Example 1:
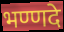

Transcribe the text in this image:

भण्णदे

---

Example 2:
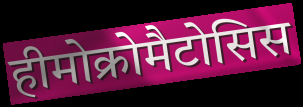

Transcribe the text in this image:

हीमोक्रोमैटोसिस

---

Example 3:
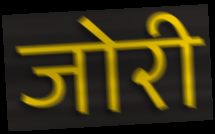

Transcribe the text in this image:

जोरी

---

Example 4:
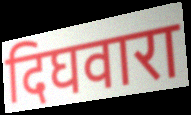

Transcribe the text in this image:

दिघवारा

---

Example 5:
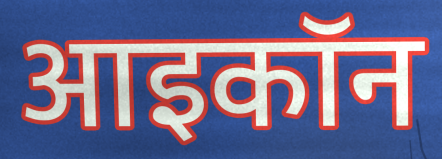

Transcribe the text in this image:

आइकॉन